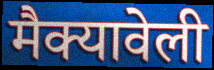
मैक्यावेली